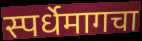
स्पर्धेमागचा